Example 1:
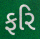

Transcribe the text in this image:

ફરિ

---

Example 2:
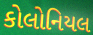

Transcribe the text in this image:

કોલોનિયલ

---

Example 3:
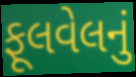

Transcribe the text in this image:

ફૂલવેલનું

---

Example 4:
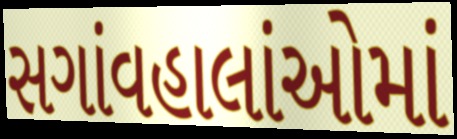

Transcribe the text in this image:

સગાંવહાલાંઓમાં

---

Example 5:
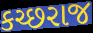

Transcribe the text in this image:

કચ્છરાજ